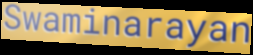
Swaminarayan